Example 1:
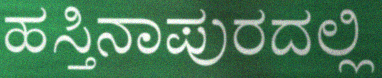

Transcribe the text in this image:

ಹಸ್ತಿನಾಪುರದಲ್ಲಿ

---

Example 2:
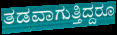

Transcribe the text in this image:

ತಡವಾಗುತ್ತಿದ್ದರೂ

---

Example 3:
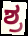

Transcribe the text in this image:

ಶ್ರ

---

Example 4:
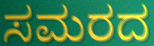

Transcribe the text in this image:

ಸಮರದ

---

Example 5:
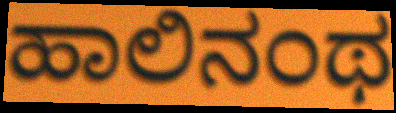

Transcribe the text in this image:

ಹಾಲಿನಂಥ